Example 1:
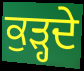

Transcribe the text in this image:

ਕੁੜ੍ਹਦੇ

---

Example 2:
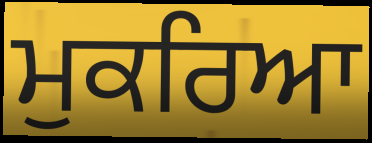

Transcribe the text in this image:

ਮੁਕਰਿਆ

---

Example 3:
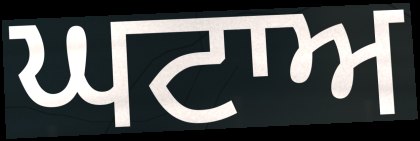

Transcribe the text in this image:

ਘਟਾਅ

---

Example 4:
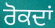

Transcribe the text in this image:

ਰੋਕਦਾਂ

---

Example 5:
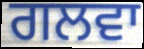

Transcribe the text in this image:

ਗਲਵਾ